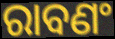
ରାବଣଂ